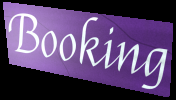
Booking